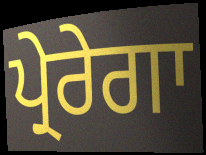
ਪ੍ਰੇਰੇਗਾ